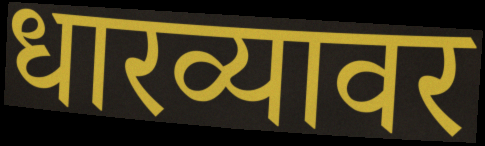
धारव्यावर